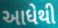
આધેથી